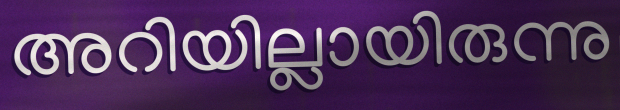
അറിയില്ലായിരുന്നു